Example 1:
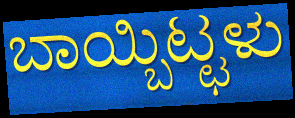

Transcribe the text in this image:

ಬಾಯ್ಬಿಟ್ಟಳು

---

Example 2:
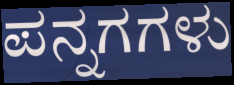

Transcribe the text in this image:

ಪನ್ನಗಗಳು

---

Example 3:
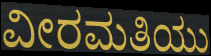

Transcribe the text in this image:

ವೀರಮತಿಯು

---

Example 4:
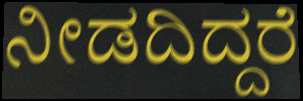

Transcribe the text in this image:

ನೀಡದಿದ್ದರೆ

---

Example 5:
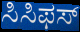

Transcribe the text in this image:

ಸಿಸಿಫಸ್